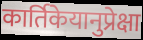
कार्तिकेयानुप्रेक्षा